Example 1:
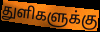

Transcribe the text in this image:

துளிகளுக்கு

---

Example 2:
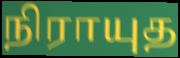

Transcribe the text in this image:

நிராயுத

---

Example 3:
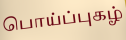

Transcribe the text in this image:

பொய்ப்புகழ்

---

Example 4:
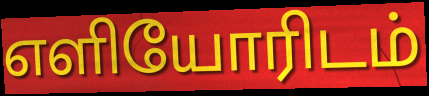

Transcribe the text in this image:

எளியோரிடம்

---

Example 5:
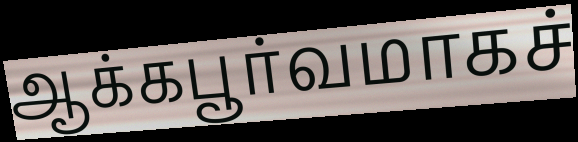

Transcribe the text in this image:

ஆக்கபூர்வமாகச்